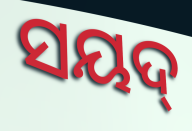
ସୟଦ୍